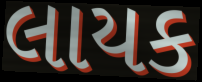
લાયક